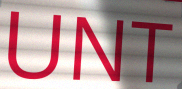
UNT